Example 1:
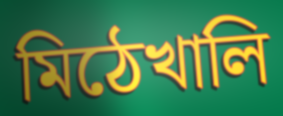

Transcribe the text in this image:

মিঠেখালি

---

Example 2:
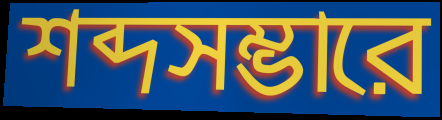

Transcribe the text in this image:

শব্দসম্ভারে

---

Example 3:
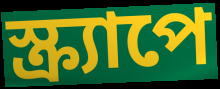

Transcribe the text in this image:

স্ক্র্যাপে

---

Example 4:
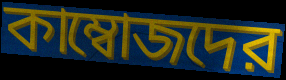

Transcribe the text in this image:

কাম্বোজদের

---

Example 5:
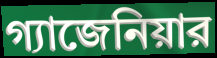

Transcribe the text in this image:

গ্যাজেনিয়ার